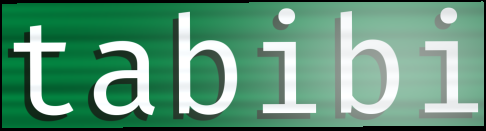
tabibi